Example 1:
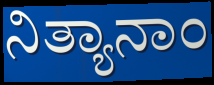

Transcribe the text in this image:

ನಿತ್ಯಾನಾಂ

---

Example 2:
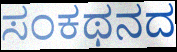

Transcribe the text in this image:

ಸಂಕಥನದ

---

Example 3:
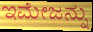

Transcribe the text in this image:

ಇಮೇಜನ್ನು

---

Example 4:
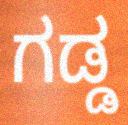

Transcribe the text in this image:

ಗಡ್ಡ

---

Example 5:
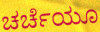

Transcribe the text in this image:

ಚರ್ಚೆಯೂ